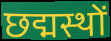
छद्मस्थों